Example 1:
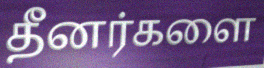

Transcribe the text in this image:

தீனர்களை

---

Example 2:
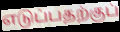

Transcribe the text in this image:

எடுப்பதற்குப்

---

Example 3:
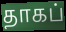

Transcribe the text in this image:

தாகப்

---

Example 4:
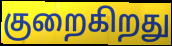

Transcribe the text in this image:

குறைகிறது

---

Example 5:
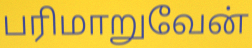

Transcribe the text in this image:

பரிமாறுவேன்